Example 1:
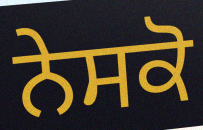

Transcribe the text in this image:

ਨੇਸਕੋ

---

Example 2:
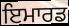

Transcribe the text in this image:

ਇਮਾਰਡ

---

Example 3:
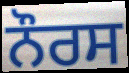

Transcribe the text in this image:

ਨੌਰਸ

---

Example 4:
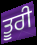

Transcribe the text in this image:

ਤੂਰੀ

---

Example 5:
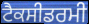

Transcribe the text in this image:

ਟੈਕਸੀਡਰਮੀ